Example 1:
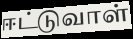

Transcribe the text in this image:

ஈட்டுவாள்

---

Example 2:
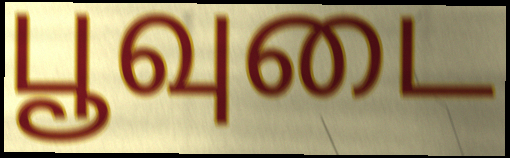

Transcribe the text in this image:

பூவுடை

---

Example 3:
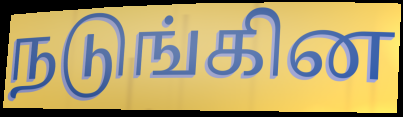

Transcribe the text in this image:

நடுங்கின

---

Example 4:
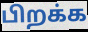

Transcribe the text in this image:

பிறக்க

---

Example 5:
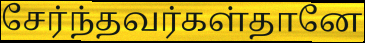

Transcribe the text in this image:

சேர்ந்தவர்கள்தானே